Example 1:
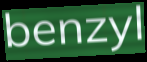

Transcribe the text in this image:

benzyl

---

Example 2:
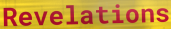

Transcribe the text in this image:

Revelations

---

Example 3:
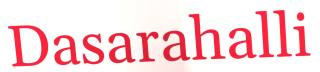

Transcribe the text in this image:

Dasarahalli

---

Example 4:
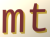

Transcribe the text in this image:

mt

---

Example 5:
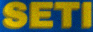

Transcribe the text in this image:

SETI